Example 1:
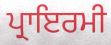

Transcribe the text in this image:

ਪ੍ਰਾਇਰਮੀ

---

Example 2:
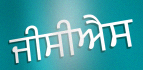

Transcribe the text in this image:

ਜੀਸੀਐਸ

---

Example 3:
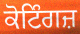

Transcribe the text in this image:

ਕੋਟਿੰਗਜ਼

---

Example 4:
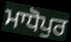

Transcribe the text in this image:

ਮਾਧੋਪੁਰ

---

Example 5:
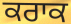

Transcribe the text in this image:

ਕਰਾਕ